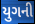
યુગની